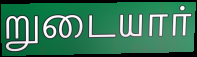
றுடையார்